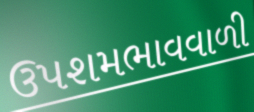
ઉપશમભાવવાળી